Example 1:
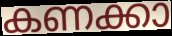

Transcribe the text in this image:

കണക്കാ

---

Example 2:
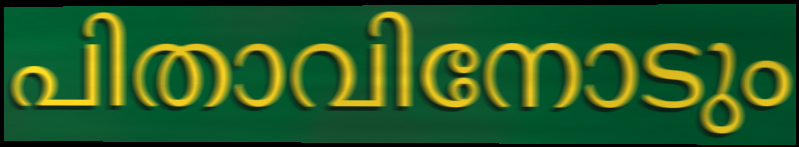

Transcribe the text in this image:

പിതാവിനോടും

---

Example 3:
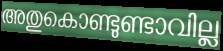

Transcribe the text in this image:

അതുകൊണ്ടുണ്ടാവില്ല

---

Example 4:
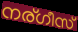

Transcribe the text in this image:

നര്ഗീസ്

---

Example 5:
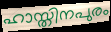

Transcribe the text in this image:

ഹാസ്തിനപുരം